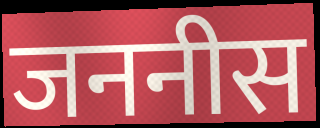
जननीस